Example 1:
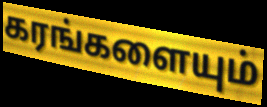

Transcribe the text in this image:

கரங்களையும்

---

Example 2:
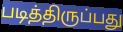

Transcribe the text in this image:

படித்திருப்பது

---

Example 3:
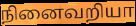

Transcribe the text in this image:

நினைவறியா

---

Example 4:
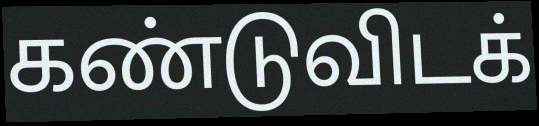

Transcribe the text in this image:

கண்டுவிடக்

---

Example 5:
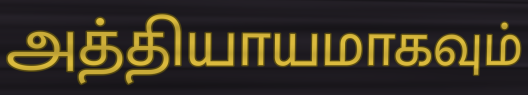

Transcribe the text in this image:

அத்தியாயமாகவும்